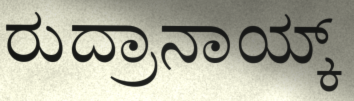
ರುದ್ರಾನಾಯ್ಕ್